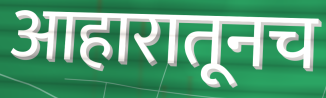
आहारातूनच